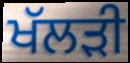
ਖੱਲੜੀ